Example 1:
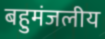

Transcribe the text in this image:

बहुमंजलीय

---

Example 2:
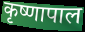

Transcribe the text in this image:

कृष्णापाल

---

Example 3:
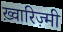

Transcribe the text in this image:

ख़्वारिज़्मी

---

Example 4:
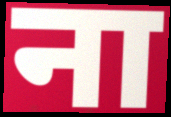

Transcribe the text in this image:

ना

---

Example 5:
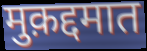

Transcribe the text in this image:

मुक़द्दमात